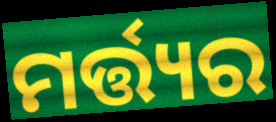
ମର୍ତ୍ତ୍ୟର